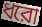
ধরো